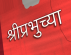
श्रीप्रभुच्या